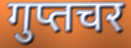
गुप्तचर